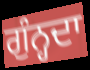
ਗੁੰਨ੍ਹਦਾ